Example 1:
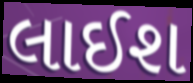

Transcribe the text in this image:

લાઈશ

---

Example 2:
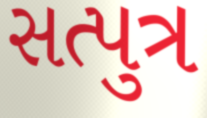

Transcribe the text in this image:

સત્પુત્ર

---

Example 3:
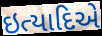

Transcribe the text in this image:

ઇત્યાદિએ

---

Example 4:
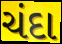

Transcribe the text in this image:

ચંદા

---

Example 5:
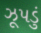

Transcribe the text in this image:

ઝૂપડું